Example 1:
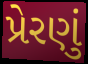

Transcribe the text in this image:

પ્રેરણું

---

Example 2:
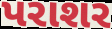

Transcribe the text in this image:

પરાશર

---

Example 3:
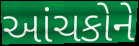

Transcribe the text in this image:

આંચકોને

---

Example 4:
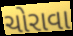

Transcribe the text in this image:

ચોરાવા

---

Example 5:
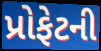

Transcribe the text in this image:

પ્રોફેટની